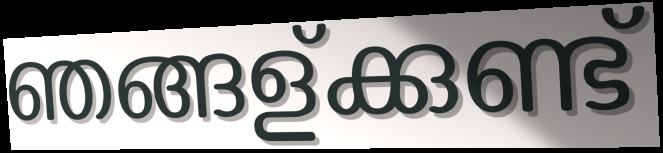
ഞങ്ങള്ക്കുണ്ട്